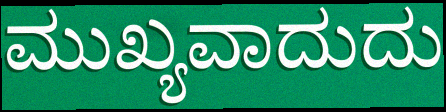
ಮುಖ್ಯವಾದುದು